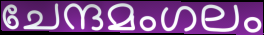
ചേന്ദമംഗലം